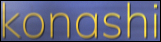
konashi